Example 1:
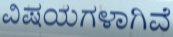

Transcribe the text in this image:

ವಿಷಯಗಳಾಗಿವೆ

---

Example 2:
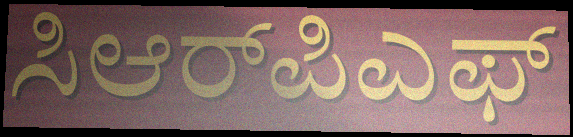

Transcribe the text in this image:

ಸಿಆರ್‌ಪಿಎಫ್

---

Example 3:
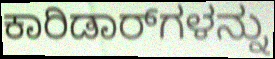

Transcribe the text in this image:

ಕಾರಿಡಾರ್‌ಗಳನ್ನು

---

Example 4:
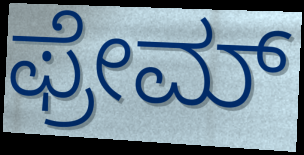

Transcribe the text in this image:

ಫ್ರೇಮ್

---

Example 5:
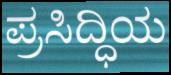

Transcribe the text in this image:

ಪ್ರಸಿದ್ಧಿಯ